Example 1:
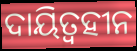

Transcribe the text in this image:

ଦାୟିତ୍ଵହୀନ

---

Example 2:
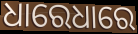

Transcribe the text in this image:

ଧାରେଧାରେ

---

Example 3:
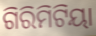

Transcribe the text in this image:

ଗିରିମିଟିୟା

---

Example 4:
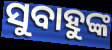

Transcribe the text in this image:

ସୁବାହୁଙ୍କ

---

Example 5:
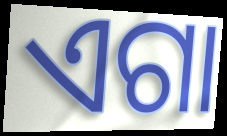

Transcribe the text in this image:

ଏଗା